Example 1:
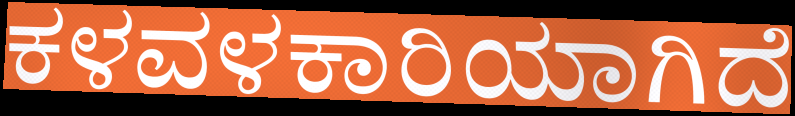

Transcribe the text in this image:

ಕಳವಳಕಾರಿಯಾಗಿದೆ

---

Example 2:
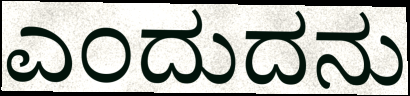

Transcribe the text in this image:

ಎಂದುದನು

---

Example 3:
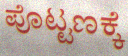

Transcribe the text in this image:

ಪೊಟ್ಟಣಕ್ಕೆ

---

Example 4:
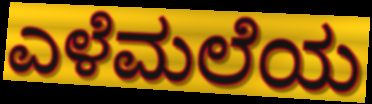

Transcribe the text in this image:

ಎಳೆಮಲೆಯ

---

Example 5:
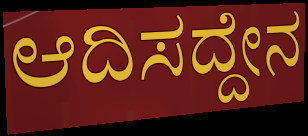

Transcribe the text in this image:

ಆದಿಸದ್ದೇನ